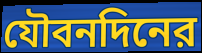
যৌবনদিনের